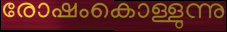
രോഷംകൊള്ളുന്നു